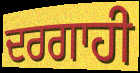
ਦਰਗਾਹੀ